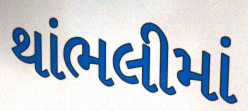
થાંભલીમાં